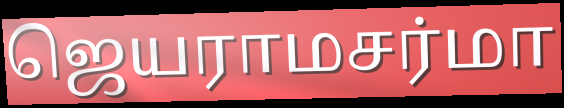
ஜெயராமசர்மா